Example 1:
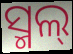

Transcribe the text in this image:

ସ୍ମଲ୍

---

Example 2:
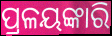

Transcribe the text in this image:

ପ୍ରଳୟଙ୍କାରି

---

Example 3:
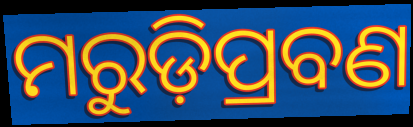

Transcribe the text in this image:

ମରୁଡ଼ିପ୍ରବଣ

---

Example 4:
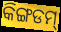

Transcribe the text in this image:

କିଙ୍ଗଡମ୍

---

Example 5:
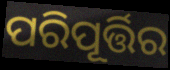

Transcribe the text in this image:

ପରିପୂର୍ତ୍ତିର